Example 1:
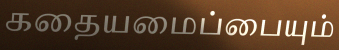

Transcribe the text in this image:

கதையமைப்பையும்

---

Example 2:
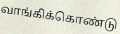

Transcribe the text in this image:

வாங்கிக்கொண்டு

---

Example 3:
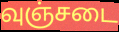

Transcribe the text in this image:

வுஞ்சடை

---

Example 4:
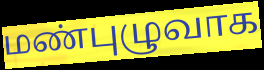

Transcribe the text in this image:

மண்புழுவாக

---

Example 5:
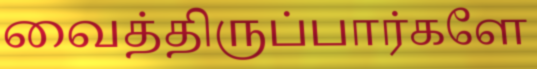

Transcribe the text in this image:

வைத்திருப்பார்களே